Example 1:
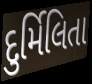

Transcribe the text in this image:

દુર્મિલિતા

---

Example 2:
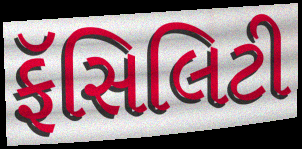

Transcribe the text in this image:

ફૅસિલિટી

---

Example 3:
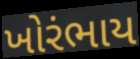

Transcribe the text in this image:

ખોરંભાય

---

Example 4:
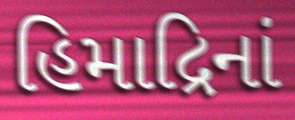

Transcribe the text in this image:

હિમાદ્રિનાં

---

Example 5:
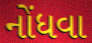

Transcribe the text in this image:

નોંધવા